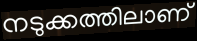
നടുക്കത്തിലാണ്